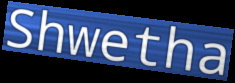
Shwetha